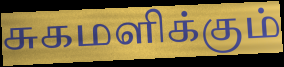
சுகமளிக்கும்